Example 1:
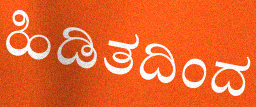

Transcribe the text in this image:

ಹಿಡಿತದಿಂದ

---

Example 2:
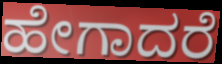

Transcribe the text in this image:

ಹೇಗಾದರೆ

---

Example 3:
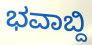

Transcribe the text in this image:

ಭವಾಬ್ದಿ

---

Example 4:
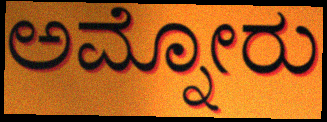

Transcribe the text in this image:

ಅಮ್ನೋರು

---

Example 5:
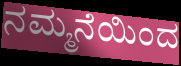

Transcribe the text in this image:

ನಮ್ಮನೆಯಿಂದ